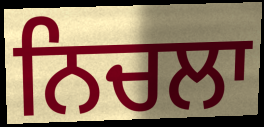
ਨਿਚਲਾ